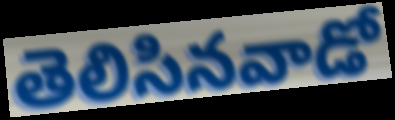
తెలిసినవాడో